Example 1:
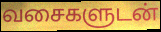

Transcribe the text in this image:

வசைகளுடன்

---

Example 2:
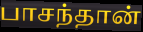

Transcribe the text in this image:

பாசந்தான்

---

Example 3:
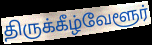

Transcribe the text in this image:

திருக்கீழ்வேளூர்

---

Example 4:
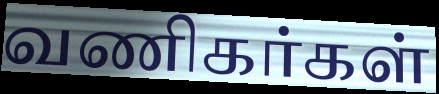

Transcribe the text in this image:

வணிகர்கள்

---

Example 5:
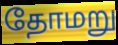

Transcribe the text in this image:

தோமறு